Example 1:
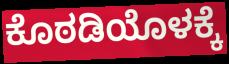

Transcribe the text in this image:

ಕೊಠಡಿಯೊಳಕ್ಕೆ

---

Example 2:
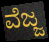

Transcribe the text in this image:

ವೆಜ್ಜ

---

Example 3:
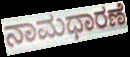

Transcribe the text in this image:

ನಾಮಧಾರಣೆ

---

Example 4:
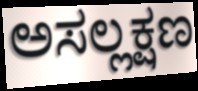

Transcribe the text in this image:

ಅಸಲ್ಲಕ್ಷಣ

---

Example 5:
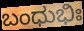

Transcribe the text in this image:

ಬಂಧುಭಿಃ